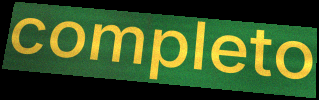
completo